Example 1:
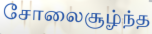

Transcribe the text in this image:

சோலைசூழ்ந்த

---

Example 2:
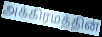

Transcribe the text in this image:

அக்கிரமத்தின்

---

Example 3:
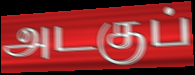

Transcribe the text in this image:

அடகுப்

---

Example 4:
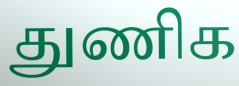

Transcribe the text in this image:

துணிக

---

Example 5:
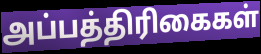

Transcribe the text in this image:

அப்பத்திரிகைகள்